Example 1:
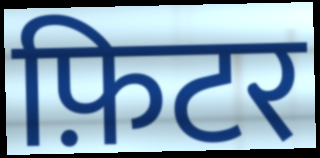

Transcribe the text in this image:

फ़िटर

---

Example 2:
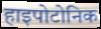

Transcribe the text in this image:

हाइपोटोनिक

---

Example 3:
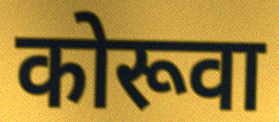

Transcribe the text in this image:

कोरूवा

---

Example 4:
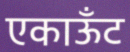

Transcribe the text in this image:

एकाऊँट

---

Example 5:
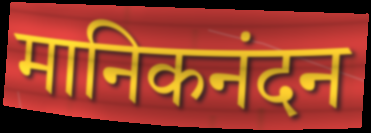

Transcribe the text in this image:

मानिकनंदन